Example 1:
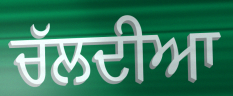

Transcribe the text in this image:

ਚੱਲਦੀਆ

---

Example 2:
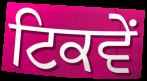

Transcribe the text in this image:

ਟਿਕਵੇਂ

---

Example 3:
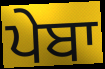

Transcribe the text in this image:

ਪੇਬਾ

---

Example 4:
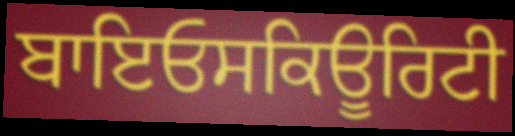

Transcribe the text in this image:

ਬਾਇਓਸਕਿਊਰਿਟੀ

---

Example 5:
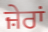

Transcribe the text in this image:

ਜ਼ੇਰਾਂ